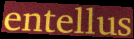
entellus